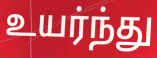
உயர்ந்து